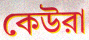
কেউরা